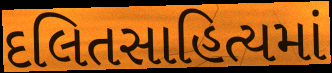
દલિતસાહિત્યમાં